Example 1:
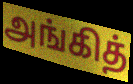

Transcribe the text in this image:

அங்கித்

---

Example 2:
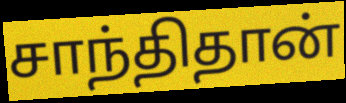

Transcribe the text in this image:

சாந்திதான்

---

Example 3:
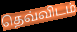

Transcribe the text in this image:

தெவ்விடம்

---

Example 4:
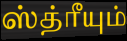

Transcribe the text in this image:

ஸ்த்ரீயும்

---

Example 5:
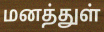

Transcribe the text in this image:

மனத்துள்